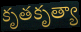
కృతకృత్యా